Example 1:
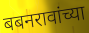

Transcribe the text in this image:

बबनरावांच्या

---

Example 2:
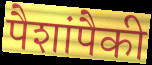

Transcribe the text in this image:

पैशांपैकी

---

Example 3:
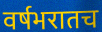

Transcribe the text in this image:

वर्षभरातच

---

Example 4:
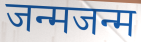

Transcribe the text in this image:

जन्मजन्म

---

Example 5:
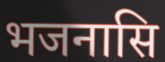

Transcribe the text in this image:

भजनासि